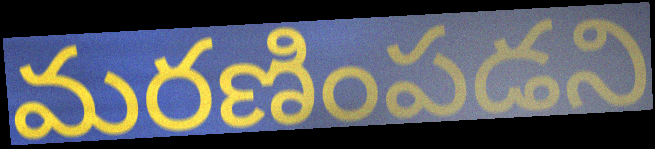
మరణింపడని